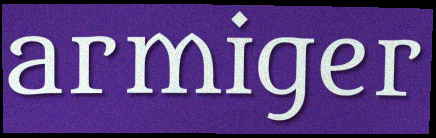
armiger